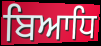
ਬਿਆਧਿ